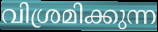
വിശ്രമിക്കുന്ന